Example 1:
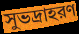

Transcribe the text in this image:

সুভদ্রাহরণ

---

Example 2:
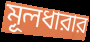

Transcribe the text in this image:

মূলধারার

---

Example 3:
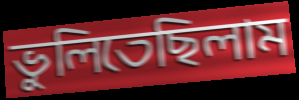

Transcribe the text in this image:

ভুলিতেছিলাম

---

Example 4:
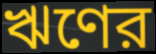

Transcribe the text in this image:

ঋণের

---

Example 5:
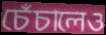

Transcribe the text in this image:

চেঁচালেও